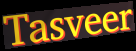
Tasveer